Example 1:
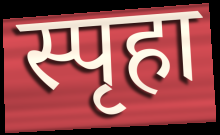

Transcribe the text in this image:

स्पृहा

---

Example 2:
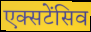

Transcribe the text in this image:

एक्सटेंसिव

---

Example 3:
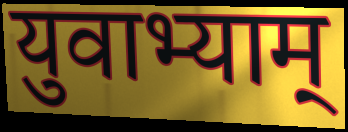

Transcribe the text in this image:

युवाभ्याम्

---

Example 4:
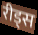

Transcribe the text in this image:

रीड्स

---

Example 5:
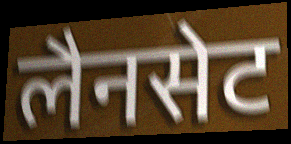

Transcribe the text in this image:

लैनसेट